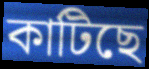
কাটিছে